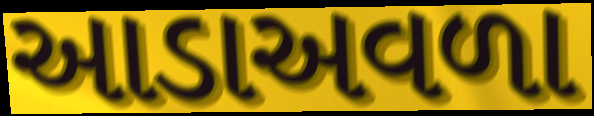
આડાઅવળા